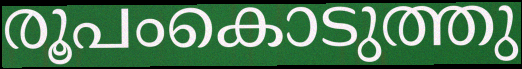
രൂപംകൊടുത്തു